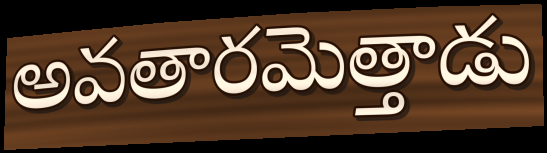
అవతారమెత్తాడు